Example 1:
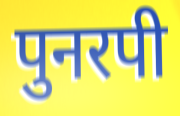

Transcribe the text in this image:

पुनरपी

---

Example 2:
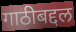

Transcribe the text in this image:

गाठीबद्दल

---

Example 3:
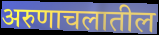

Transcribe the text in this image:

अरुणाचलातील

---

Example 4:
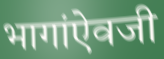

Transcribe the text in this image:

भागांऐवजी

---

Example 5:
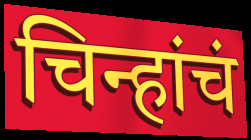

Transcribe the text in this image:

चिन्हांचं